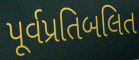
પૂર્વપ્રતિબલિત